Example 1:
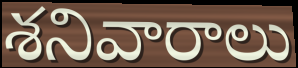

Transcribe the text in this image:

శనివారాలు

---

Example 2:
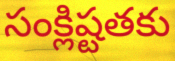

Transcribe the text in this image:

సంక్లిష్టతకు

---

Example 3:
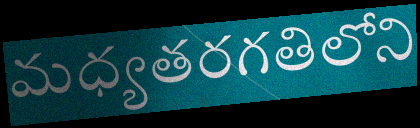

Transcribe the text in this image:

మధ్యతరగతిలోని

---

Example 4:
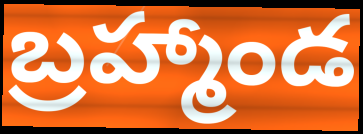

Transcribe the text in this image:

బ్రహ్మాండ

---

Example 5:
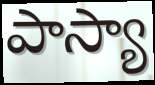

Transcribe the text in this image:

పాస్యా